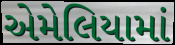
એમેલિયામાં